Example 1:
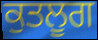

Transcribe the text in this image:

ਕੁਤਲੂਗ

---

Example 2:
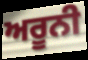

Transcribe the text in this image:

ਅਰੂਨੀ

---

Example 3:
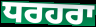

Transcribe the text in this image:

ਧਰਹਰਾ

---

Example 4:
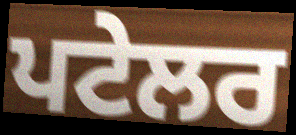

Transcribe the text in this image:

ਪਟੇਲਰ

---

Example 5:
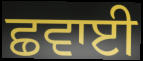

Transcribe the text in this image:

ਛਵਾਈ